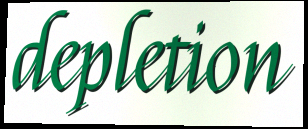
depletion